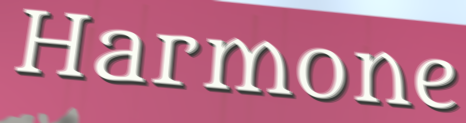
Harmone